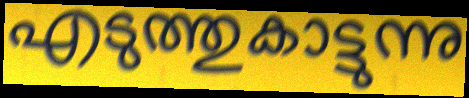
എടുത്തുകാട്ടുന്നു